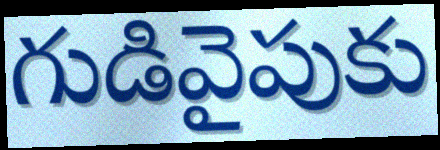
గుడివైపుకు